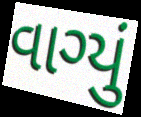
વાગ્યું